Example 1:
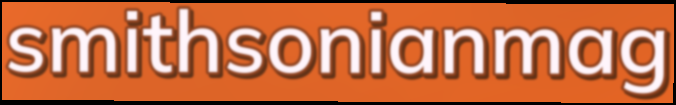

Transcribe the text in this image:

smithsonianmag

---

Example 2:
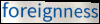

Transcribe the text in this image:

foreignness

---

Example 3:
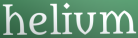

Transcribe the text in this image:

helium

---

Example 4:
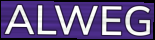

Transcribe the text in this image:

ALWEG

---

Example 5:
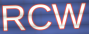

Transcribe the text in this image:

RCW